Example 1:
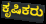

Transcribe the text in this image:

ಕೃಷಿಕರು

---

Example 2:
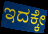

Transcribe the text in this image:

ಇದಕ್ಕೇ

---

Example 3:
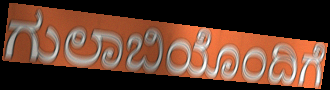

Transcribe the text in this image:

ಗುಲಾಬಿಯೊಂದಿಗೆ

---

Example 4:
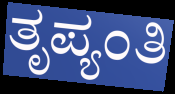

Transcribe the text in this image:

ತೃಪ್ಯಂತಿ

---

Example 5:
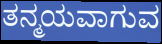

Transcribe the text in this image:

ತನ್ಮಯವಾಗುವ